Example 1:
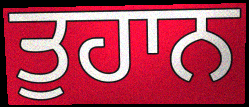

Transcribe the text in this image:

ਤੁਹਾਨ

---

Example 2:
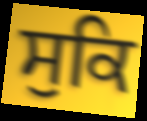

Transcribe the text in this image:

ਸੁਕਿ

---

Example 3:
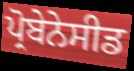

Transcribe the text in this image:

ਪ੍ਰੋਬੇਨੇਸੀਡ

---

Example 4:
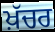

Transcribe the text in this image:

ਖ਼ੱਚਰ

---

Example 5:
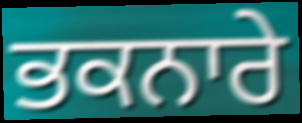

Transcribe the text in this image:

ਭਕਨਾਰੇ